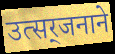
उत्सर्जनाने